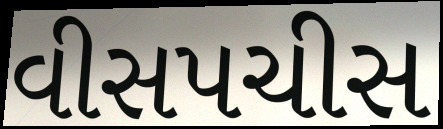
વીસપચીસ